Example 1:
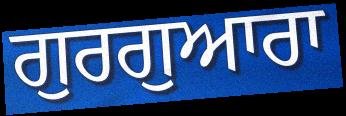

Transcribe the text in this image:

ਗੁਰਗੁਆਰਾ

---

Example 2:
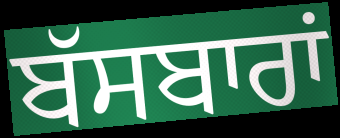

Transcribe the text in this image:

ਬੱਸਬਾਰਾਂ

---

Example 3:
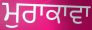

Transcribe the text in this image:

ਮੁਰਾਕਾਵਾ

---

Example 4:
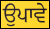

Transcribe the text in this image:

ਉਪਾਵੇ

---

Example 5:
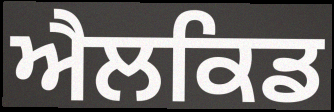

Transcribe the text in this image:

ਐਲਕਿਡ